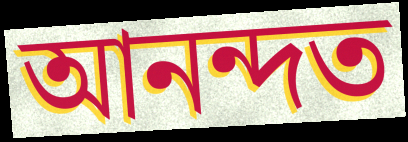
আনন্দত